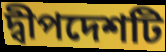
দ্বীপদেশটি